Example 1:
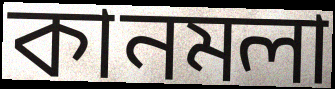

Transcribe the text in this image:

কানমলা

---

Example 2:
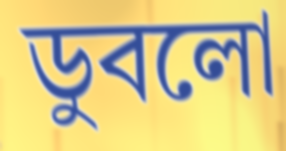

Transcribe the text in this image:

ডুবলো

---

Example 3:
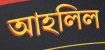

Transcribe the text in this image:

আহলিল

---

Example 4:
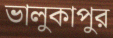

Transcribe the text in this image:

ভালুকাপুর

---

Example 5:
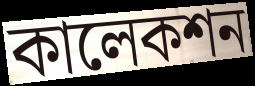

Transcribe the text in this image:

কালেকশন